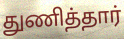
துணித்தார்